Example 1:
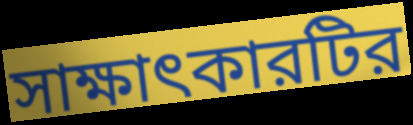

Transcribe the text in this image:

সাক্ষাৎকারটির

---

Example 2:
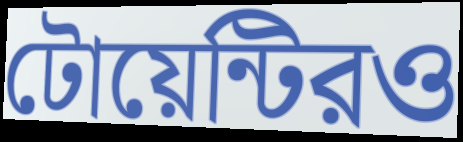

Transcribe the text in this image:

টোয়েন্টিরও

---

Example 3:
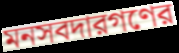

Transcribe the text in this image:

মনসবদারগণের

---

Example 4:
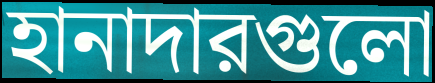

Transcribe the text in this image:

হানাদারগুলো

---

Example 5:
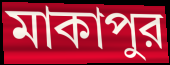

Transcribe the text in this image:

মাকাপুর